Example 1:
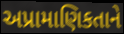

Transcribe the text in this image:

અપ્રામાણિકતાને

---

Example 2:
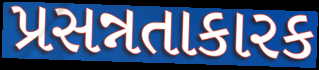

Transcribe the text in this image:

પ્રસન્નતાકારક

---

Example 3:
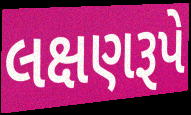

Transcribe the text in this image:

લક્ષણરૂપે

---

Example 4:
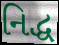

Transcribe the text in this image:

નિદ્ધ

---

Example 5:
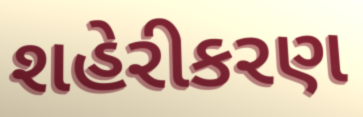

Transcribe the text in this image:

શહેરીકરણ